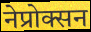
नेप्रोक्सन